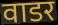
वाडर